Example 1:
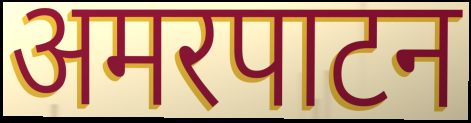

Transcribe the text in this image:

अमरपाटन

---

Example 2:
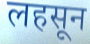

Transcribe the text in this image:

लहसून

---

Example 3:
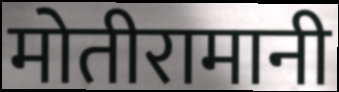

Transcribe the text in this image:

मोतीरामानी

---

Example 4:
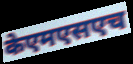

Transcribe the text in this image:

केएमएसएच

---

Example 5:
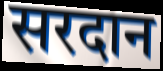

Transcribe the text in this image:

सरदान